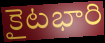
కైటభారి